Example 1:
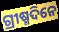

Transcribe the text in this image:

ଗ୍ରୀଷ୍ମଦିନେ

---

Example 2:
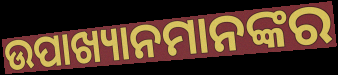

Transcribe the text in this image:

ଉପାଖ୍ୟାନମାନଙ୍କର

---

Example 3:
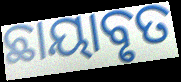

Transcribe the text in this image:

ଛାୟାବୃତ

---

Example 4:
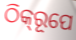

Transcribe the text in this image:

ଠିକ୍‌ରୂପେ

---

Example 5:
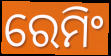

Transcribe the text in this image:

ରେମିଂ